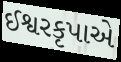
ઈશ્વરકૃપાએ